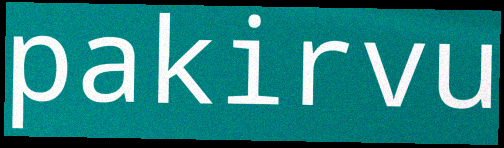
pakirvu